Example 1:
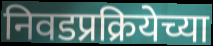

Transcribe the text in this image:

निवडप्रक्रियेच्या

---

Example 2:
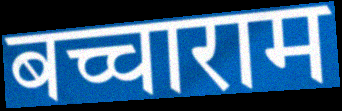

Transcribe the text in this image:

बच्चाराम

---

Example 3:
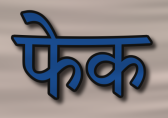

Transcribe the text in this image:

फेक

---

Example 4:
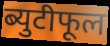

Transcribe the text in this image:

ब्युटीफूल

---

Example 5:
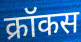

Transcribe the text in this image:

क्रॉकस